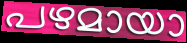
പഴമായാ